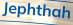
Jephthah